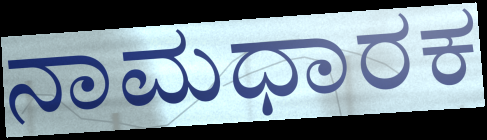
ನಾಮಧಾರಕ